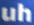
uh